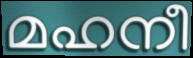
മഹനീ